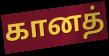
கானத்